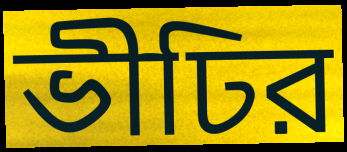
ভীঢির